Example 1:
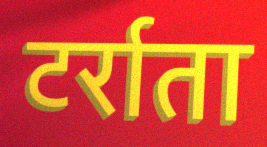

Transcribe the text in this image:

टर्राता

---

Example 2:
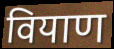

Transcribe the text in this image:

वियाण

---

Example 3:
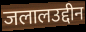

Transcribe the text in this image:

जलालउद्दीन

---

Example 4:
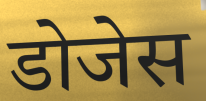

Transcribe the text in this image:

डोजेस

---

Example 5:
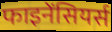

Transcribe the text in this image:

फाइनेंसियर्स